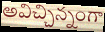
అవిచ్చిన్నంగా